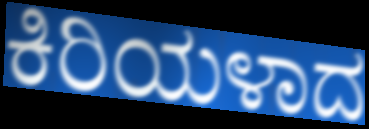
ಕಿರಿಯಳಾದ